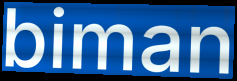
biman